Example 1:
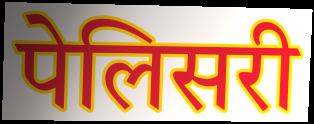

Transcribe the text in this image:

पेलिसरी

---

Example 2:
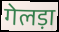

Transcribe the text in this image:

गेलड़ा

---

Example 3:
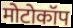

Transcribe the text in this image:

मोटोकॉप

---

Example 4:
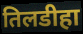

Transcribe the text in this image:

तिलडीहा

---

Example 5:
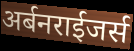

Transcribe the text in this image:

अर्बनराईजर्स